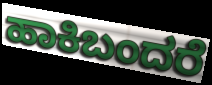
ಹಾಕಿಬಂದರೆ